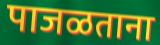
पाजळताना